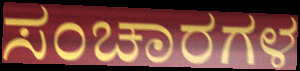
ಸಂಚಾರಗಳ